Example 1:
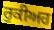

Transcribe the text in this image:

ਰੁਕੀਅਹ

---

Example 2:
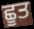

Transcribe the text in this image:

ਛੂਤ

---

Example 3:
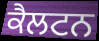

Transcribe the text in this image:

ਕੈਲਟਨ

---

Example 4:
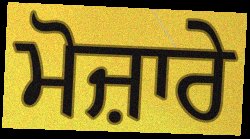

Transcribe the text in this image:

ਮੋਜ਼ਾਰੇ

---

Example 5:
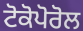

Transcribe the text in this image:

ਟੋਕੋਪੋਰੋਲ